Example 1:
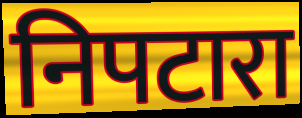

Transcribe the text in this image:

निपटारा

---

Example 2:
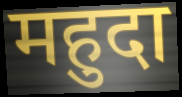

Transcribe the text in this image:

महुदा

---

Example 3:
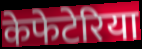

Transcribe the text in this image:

केफेटेरिया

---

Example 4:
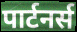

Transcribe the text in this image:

पार्टनर्स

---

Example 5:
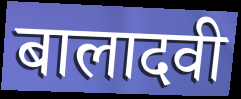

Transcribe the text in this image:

बालादवी